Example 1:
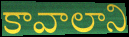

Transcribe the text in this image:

కావాలాని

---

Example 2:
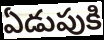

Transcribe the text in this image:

ఏడుపుకి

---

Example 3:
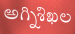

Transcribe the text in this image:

అగ్నిశిఖల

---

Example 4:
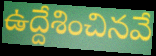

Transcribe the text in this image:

ఉద్దేశించినవే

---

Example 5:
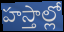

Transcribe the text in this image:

హస్తాల్లో